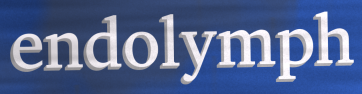
endolymph